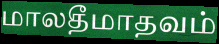
மாலதீமாதவம்